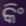
କିଂ